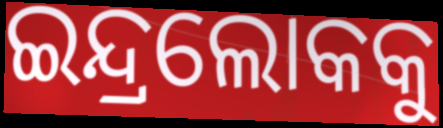
ଇନ୍ଦ୍ରଲୋକକୁ